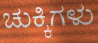
ಚುಕ್ಕಿಗಳು